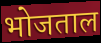
भोजताल